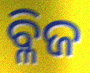
ବ୍ଳିଜ